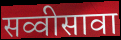
सव्वीसावा